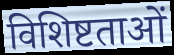
विशिष्टताओं